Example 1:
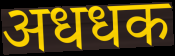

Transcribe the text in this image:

अधधक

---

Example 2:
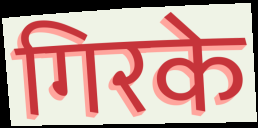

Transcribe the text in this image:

गिरके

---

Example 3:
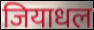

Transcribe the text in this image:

जियाधल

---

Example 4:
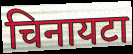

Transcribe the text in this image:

चिनायटा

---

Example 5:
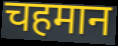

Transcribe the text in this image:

चहमान